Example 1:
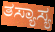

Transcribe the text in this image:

ತಸ್ಯಾಸ್ಯ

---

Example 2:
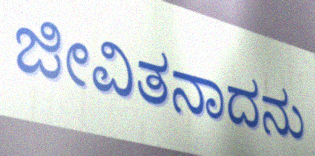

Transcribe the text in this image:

ಜೀವಿತನಾದನು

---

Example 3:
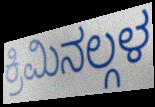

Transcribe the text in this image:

ಕ್ರಿಮಿನಲ್ಗಳ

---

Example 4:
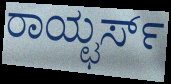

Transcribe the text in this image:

ರಾಯ್ಟರ್ಸ್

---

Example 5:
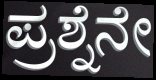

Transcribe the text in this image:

ಪ್ರಶ್ನೆನೇ